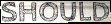
SHOULD